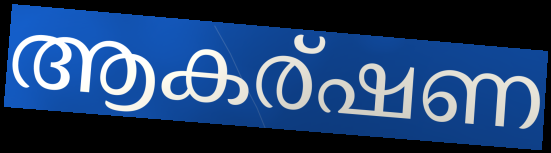
ആകര്ഷണ